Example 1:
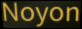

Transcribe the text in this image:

Noyon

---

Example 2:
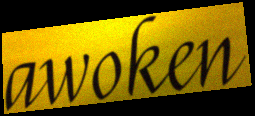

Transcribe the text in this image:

awoken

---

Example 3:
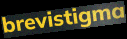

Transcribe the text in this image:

brevistigma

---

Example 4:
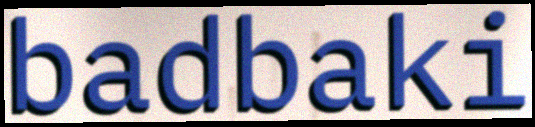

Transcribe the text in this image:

badbaki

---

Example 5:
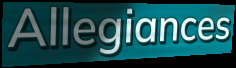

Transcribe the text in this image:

Allegiances